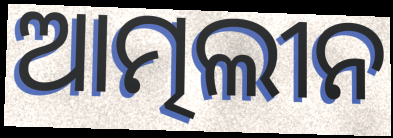
ଆତ୍ମଲୀନ